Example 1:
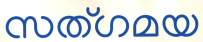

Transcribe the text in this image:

സത്ഗമയ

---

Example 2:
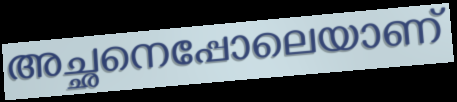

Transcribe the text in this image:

അച്ഛനെപ്പോലെയാണ്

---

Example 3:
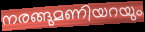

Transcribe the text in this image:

നരങ്ങുമണിയറയും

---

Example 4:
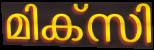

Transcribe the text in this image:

മിക്‌സി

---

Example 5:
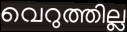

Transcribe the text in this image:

വെറുത്തില്ല